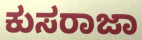
ಕುಸರಾಜಾ